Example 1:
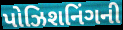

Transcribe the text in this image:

પોઝિશનિંગની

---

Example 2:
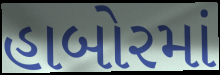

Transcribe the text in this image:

હાબોરમાં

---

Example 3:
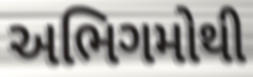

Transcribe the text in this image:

અભિગમોથી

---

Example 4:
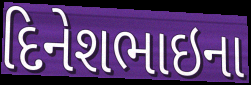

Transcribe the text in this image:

દિનેશભાઇના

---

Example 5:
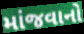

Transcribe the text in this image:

માંજવાનો